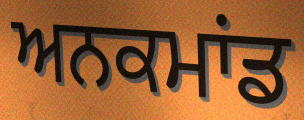
ਅਨਕਮਾਂਡ